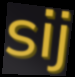
sij